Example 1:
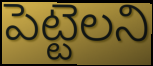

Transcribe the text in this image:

పెట్టెలని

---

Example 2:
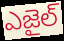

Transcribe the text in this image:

ఎజైల్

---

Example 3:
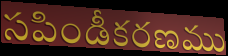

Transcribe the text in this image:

సపిండీకరణము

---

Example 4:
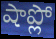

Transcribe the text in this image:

షాప్లో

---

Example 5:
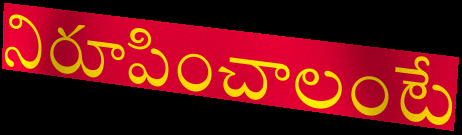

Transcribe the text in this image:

నిరూపించాలంటే